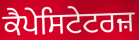
ਕੈਪੇਸਿਟੇਟਰਜ਼